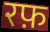
रफ़